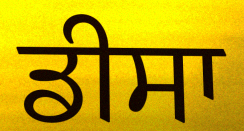
ਡੀਸਾ